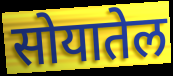
सोयातेल